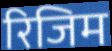
रिजिम